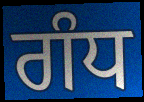
ਗੰਧ